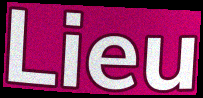
Lieu